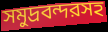
সমুদ্রবন্দরসহ